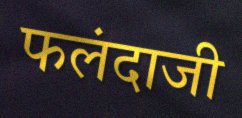
फलंदाजी